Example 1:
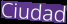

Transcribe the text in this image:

Ciudad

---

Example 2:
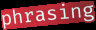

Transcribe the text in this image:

phrasing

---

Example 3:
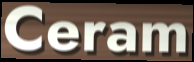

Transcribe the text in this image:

Ceram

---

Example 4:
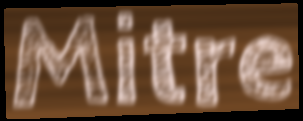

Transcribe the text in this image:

Mitre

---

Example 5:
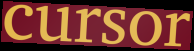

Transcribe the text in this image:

cursor